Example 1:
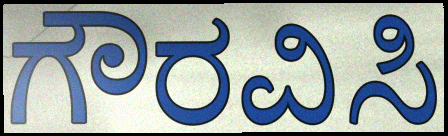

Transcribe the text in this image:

ಗೌರವಿಸಿ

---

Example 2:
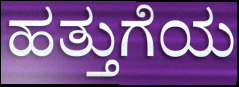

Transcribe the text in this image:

ಹತ್ತುಗೆಯ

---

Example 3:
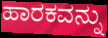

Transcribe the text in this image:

ಹಾರಕವನ್ನು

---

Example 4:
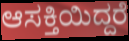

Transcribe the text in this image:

ಆಸಕ್ತಿಯಿದ್ದರೆ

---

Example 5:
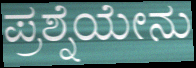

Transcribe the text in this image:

ಪ್ರಶ್ನೆಯೇನು